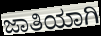
ಜಾತಿಯಾಗಿ